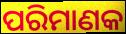
ପରିମାଣକ